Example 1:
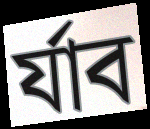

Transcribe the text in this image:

র্যাব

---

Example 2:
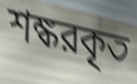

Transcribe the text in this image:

শঙ্করকৃত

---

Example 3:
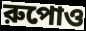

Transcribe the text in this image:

রুপোও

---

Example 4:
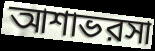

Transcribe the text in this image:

আশাভরসা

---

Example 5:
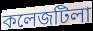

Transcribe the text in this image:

কলেজটিলা